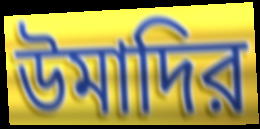
উমাদির